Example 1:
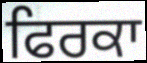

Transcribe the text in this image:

ਫਿਰਕਾ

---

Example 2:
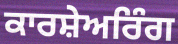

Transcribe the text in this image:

ਕਾਰਸ਼ੇਅਰਿੰਗ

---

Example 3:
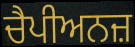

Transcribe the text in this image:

ਚੈਪੀਅਨਜ਼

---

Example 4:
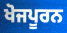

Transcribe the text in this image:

ਖੋਜਪੂਰਨ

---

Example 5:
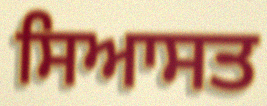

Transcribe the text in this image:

ਸਿਆਸਤ